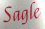
Sagle